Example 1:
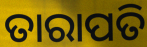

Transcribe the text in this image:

ତାରାପତି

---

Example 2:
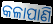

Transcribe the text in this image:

କଳାପାଣି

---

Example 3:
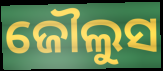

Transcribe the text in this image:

ଜୌଲୁସ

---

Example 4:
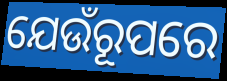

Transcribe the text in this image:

ଯେଉଁରୂପରେ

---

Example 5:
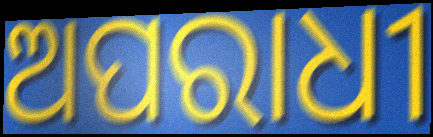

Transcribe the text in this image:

ଅପରାଧୀ